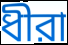
ধীরা